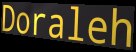
Doraleh